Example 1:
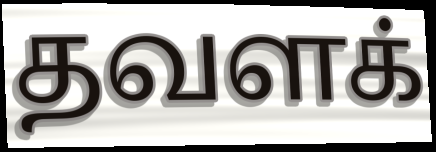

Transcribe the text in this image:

தவளக்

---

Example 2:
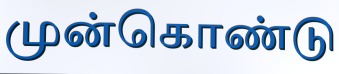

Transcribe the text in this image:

முன்கொண்டு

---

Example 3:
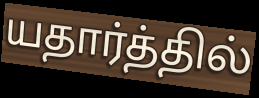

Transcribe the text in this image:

யதார்த்தில்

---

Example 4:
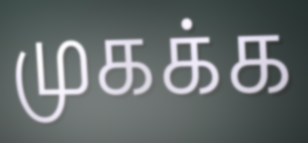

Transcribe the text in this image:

முகக்க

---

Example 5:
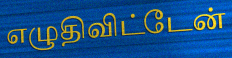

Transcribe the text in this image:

எழுதிவிட்டேன்